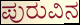
ಪುರುವಿನ